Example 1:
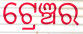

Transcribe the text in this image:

ଟ୍ରେଞ୍ଚର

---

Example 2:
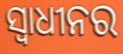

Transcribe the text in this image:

ସ୍ୱାଧୀନର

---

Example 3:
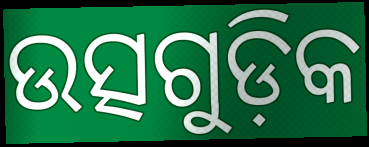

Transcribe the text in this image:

ଉତ୍ସଗୁଡ଼ିକ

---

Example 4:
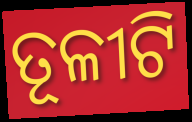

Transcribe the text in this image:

ତୂଳୀଟି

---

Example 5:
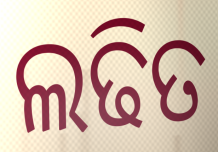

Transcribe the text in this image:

ଲଢିତ